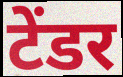
टेंडर